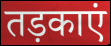
तड़काएं